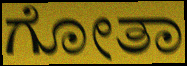
ಗೋತಾ